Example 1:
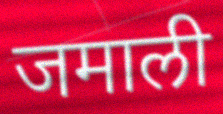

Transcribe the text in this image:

जमाली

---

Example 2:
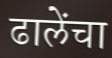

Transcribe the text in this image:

ढालेंचा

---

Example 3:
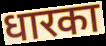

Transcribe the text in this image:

धारका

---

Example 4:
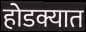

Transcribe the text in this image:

होडक्यात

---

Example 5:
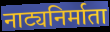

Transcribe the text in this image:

नाट्यनिर्माता